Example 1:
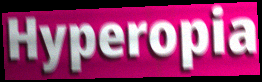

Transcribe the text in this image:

Hyperopia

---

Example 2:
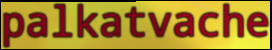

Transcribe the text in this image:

palkatvache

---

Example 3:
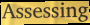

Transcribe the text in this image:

Assessing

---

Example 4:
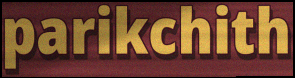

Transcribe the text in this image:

parikchith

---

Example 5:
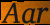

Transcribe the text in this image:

Aar